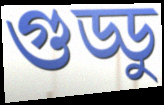
গুড্ডু